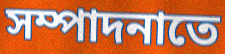
সম্পাদনাতে